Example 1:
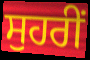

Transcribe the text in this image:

ਸੁਹਰੀਂ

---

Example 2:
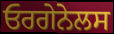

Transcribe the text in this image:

ਓਰਗੇਨੇਲਸ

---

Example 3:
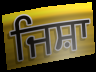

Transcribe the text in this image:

ਜਿਸ਼ਾ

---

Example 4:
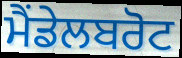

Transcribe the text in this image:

ਮੈਂਡੇਲਬਰੋਟ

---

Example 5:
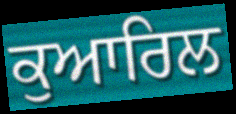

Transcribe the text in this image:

ਕੁਆਰਿਲ